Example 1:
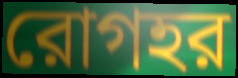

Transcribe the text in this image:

রোগহর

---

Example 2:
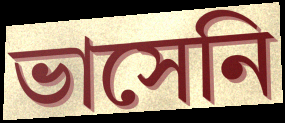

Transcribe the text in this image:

ভাসেনি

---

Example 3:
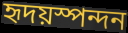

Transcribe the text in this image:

হৃদয়স্পন্দন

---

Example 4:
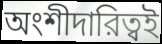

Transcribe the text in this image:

অংশীদারিত্বই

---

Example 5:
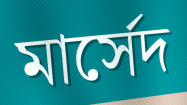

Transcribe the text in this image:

মার্সেদ